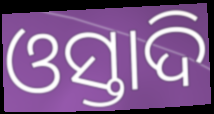
ଓସ୍ତାଦି